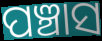
ପଞ୍ଚାସ